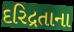
દરિદ્રતાના